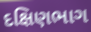
દક્ષિણભાગ